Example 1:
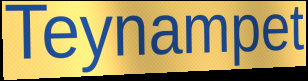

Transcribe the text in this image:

Teynampet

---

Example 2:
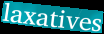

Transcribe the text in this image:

laxatives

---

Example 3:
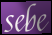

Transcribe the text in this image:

sebe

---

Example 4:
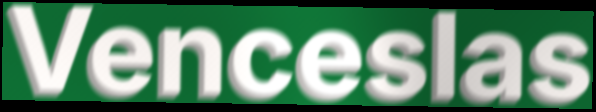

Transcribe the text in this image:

Venceslas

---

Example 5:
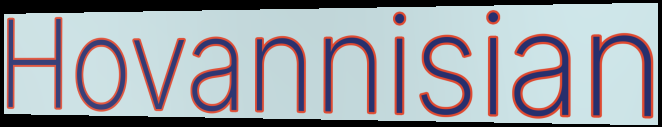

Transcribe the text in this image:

Hovannisian